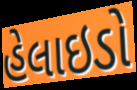
હેલાઇડો